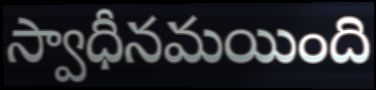
స్వాధీనమయింది